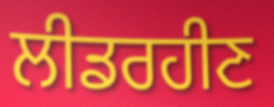
ਲੀਡਰਹੀਣ